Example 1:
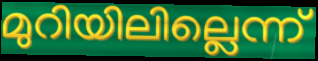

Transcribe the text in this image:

മുറിയിലില്ലെന്ന്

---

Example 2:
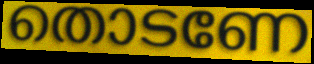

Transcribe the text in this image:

തൊടണേ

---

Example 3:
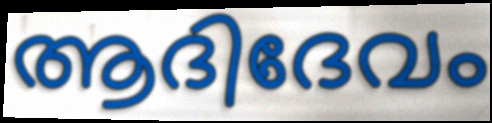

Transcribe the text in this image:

ആദിദേവം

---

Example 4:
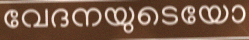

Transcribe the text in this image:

വേദനയുടെയോ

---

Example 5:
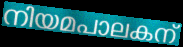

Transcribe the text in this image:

നിയമപാലകന്